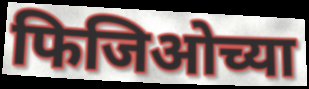
फिजिओच्या